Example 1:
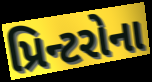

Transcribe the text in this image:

પ્રિન્ટરોના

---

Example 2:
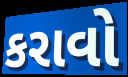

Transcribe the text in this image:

કરાવો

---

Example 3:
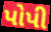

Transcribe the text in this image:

પોપી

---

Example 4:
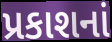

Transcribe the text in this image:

પ્રકાશનાં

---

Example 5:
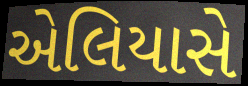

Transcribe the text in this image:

એલિયાસે